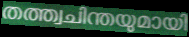
തത്ത്വചിന്തയുമായി